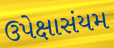
ઉપેક્ષાસંયમ